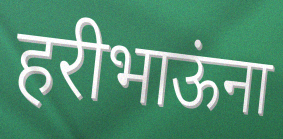
हरीभाऊंना